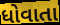
ધોવાતા